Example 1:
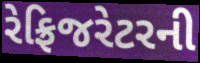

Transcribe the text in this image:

રેફ્રિજરેટરની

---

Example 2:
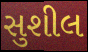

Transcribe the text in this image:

સુશીલ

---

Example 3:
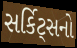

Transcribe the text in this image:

સર્કિટ્સનો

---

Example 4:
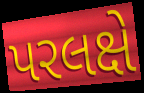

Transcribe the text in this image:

પરલક્ષે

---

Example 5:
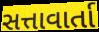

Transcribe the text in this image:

સત્તાવાર્તા